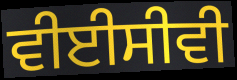
ਵੀਈਸੀਵੀ